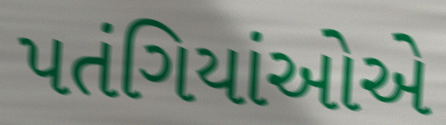
પતંગિયાંઓએ